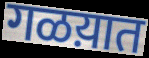
गळय़ात